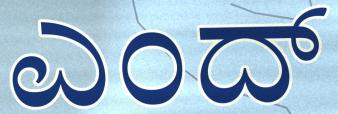
ಎಂದ್